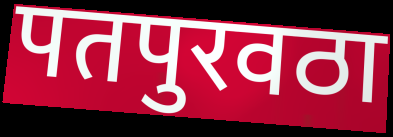
पतपुरवठा